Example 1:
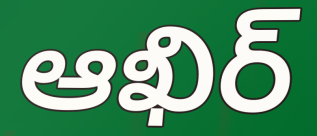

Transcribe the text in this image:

ఆఖిర్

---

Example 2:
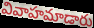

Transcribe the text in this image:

వివాహమాడారు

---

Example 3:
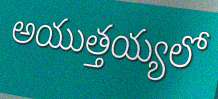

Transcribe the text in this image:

అయుత్తయ్యలో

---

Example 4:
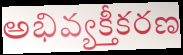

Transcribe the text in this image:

అభివ్యక్తీకరణ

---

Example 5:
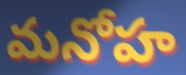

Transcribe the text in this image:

మనోహ